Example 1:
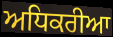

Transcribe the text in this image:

ਅਧਿਕਰੀਆ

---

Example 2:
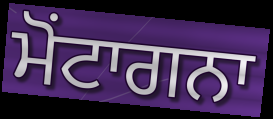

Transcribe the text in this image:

ਮੋਂਟਾਗਨਾ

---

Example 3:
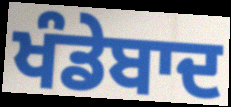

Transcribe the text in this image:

ਖੰਡੇਬਾਦ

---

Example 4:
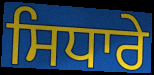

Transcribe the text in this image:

ਸਿਧਾਰੇ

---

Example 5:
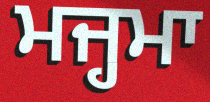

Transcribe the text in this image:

ਮਜ੍ਹਮਾ